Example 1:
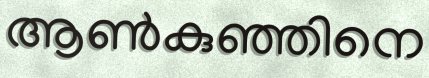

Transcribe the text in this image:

ആൺകുഞ്ഞിനെ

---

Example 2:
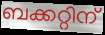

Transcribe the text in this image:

ബക്കറ്റിന്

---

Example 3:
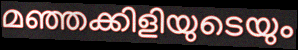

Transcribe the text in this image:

മഞ്ഞക്കിളിയുടെയും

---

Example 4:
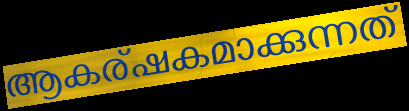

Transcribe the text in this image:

ആകര്ഷകമാക്കുന്നത്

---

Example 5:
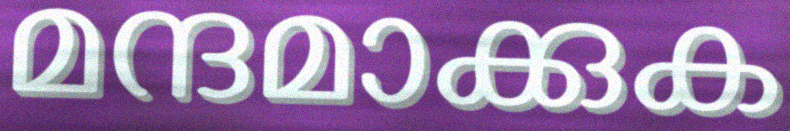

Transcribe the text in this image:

മന്ദമാക്കുക